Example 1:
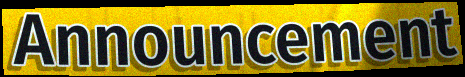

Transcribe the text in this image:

Announcement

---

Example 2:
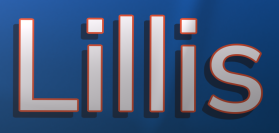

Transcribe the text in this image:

Lillis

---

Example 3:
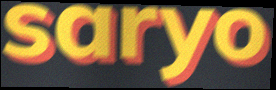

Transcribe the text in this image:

saryo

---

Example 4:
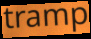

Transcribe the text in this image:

tramp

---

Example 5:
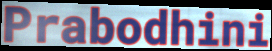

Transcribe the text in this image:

Prabodhini